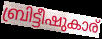
ബ്രിട്ടീഷുകാര്